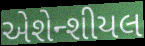
એશેન્શીયલ